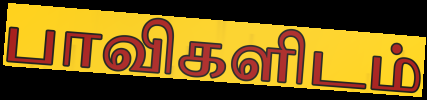
பாவிகளிடம்